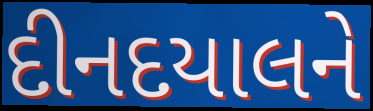
દીનદયાલને